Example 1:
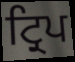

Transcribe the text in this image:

ਟ੍ਰਿਪ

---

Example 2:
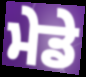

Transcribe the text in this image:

ਮੇਡੇ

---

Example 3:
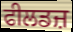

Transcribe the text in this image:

ਫੀਲਡਜ਼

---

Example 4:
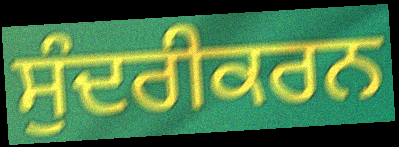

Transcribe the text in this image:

ਸੁੰਦਰੀਕਰਨ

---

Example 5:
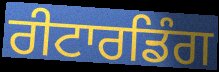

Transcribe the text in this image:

ਰੀਟਾਰਡਿੰਗ